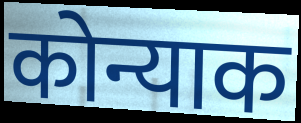
कोन्याक